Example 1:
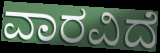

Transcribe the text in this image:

ವಾರವಿದೆ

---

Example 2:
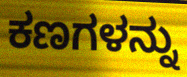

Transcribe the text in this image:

ಕಣಗಳನ್ನು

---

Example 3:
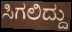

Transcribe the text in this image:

ಸಿಗಲಿದ್ದು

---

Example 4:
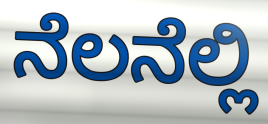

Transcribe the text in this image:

ನೆಲನೆಲ್ಲಿ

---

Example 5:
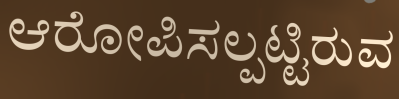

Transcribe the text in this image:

ಆರೋಪಿಸಲ್ಪಟ್ಟಿರುವ